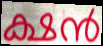
ക്ഷൻ